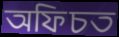
অফিচত